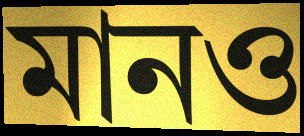
মানও